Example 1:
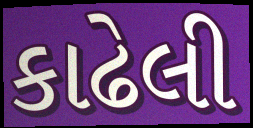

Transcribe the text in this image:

કાઢેલી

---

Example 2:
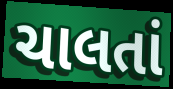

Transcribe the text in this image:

ચાલતાં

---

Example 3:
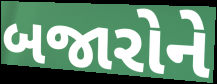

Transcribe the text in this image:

બજારોને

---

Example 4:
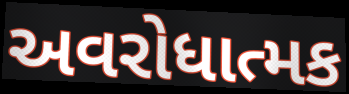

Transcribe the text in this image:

અવરોધાત્મક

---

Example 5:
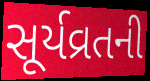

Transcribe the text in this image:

સૂર્યવ્રતની